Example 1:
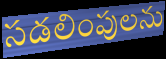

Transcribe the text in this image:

సడలింపులను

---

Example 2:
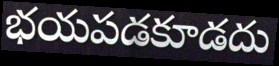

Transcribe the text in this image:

భయపడకూడదు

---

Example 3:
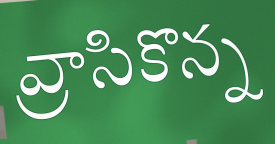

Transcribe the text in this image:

వ్రాసికొన్న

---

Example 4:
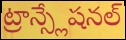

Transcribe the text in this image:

ట్రాన్స్లేషనల్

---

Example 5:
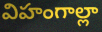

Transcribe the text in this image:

విహంగాల్లా